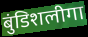
बुंडिशलीगा